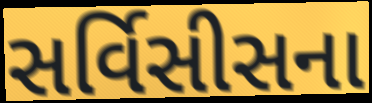
સર્વિસીસના